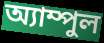
অ্যাম্পুল